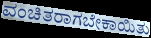
ವಂಚಿತರಾಗಬೇಕಾಯಿತು